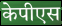
केपीएस